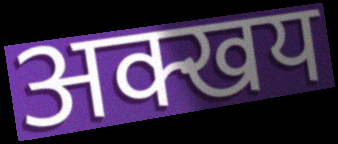
अक्खय